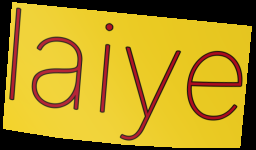
laiye